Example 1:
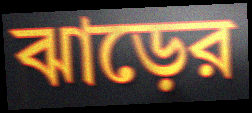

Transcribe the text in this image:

ঝাড়ের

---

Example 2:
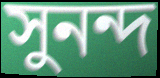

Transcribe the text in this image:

সুনন্দ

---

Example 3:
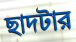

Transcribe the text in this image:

ছাদটার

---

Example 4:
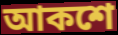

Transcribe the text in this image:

আকশে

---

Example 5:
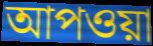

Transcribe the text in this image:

আপওয়া